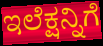
ಇಲೆಕ್ಷನ್ನಿಗೆ